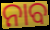
ନାବ